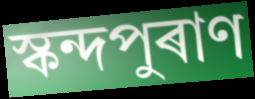
স্কন্দপুৰাণ